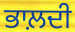
ਭਾਲ਼ਦੀ